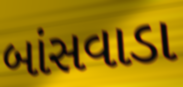
બાંસવાડા